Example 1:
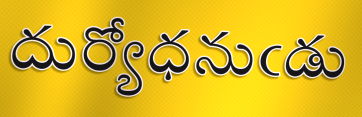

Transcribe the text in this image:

దుర్యోధనుఁడు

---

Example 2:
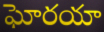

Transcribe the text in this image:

ఘోరయా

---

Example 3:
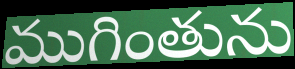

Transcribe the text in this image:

ముగింతును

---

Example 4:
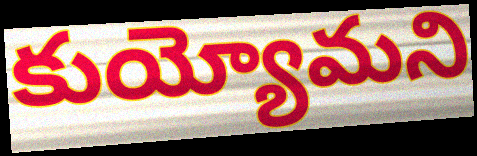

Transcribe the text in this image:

కుయ్యోమని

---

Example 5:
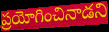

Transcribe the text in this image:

ప్రయోగించినాడని